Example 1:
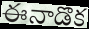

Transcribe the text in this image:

ఈనాడొక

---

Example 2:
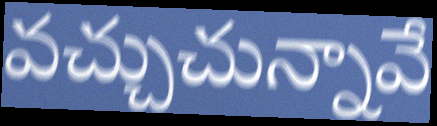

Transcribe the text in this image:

వచ్చుచున్నావే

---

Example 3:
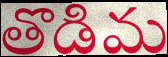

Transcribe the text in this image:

తొడిమ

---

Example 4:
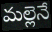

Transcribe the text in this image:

మల్లెనే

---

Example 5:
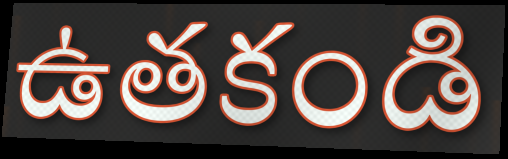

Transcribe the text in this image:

ఉతకండి